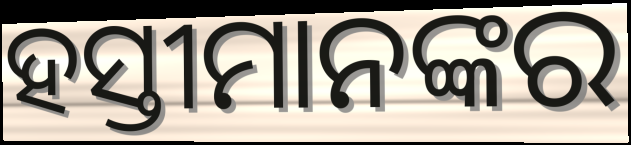
ହସ୍ତୀମାନଙ୍କର